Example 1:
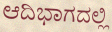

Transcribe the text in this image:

ಆದಿಭಾಗದಲ್ಲಿ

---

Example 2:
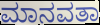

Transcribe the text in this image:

ಮಾನವತಾ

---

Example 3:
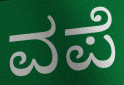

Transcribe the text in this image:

ವಪೆ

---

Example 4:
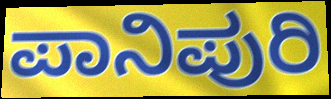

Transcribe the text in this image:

ಪಾನಿಪುರಿ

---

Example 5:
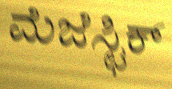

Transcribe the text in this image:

ಮೆಜೆಸ್ಟಿಕ್